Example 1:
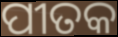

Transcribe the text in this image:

ପୀତକ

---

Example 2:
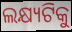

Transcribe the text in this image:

ଲକ୍ଷ୍ୟଟିକୁ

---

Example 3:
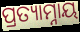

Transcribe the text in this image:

ପ୍ରତ୍ୟାମ୍ନାୟ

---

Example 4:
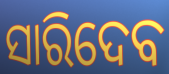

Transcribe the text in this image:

ସାରିଦେବ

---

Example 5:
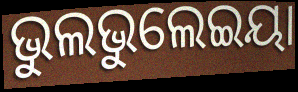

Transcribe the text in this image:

ଭୁଲଭୁଲେଇୟା